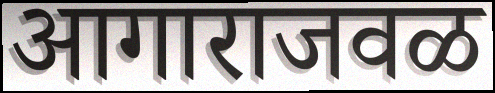
आगाराजवळ